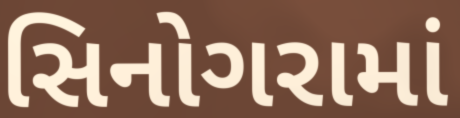
સિનોગરામાં